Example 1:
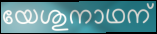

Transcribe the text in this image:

യേശുനാഥന്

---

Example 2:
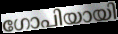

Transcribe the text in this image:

ഗോപിയായി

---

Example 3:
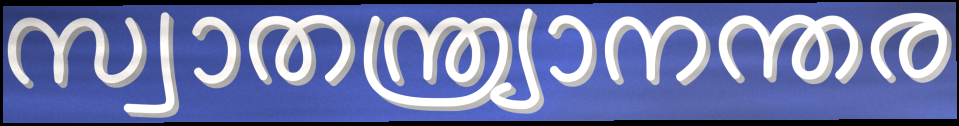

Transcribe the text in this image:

സ്വാതന്ത്ര്യാനന്തര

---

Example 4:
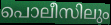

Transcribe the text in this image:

പൊലീസിലും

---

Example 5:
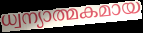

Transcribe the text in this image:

ധ്വന്യാത്മകമായ